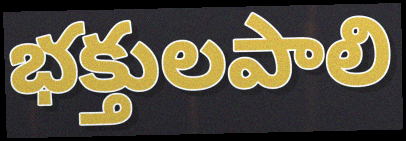
భక్తులపాలి